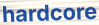
hardcore